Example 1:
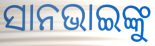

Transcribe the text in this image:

ସାନଭାଇଙ୍କୁ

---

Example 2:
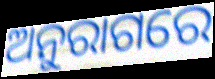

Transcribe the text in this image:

ଅନୁରାଗରେ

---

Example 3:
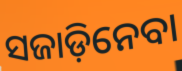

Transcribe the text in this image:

ସଜାଡ଼ିନେବା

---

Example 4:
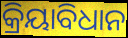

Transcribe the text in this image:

କ୍ରିୟାବିଧାନ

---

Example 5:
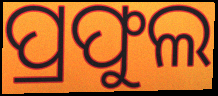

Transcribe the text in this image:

ପ୍ରଫୁଲ